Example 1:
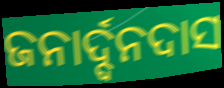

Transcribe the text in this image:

ଜନାର୍ଦ୍ଦନଦାସ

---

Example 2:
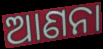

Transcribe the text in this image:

ଆଣନା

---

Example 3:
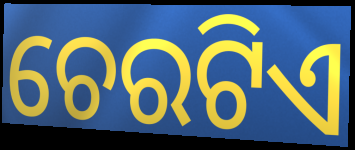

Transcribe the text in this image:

ଚେରଟିଏ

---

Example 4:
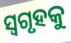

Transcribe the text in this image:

ସ୍ୱଗୃହକୁ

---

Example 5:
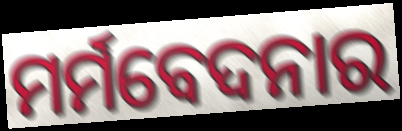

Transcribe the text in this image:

ମର୍ମବେଦନାର